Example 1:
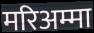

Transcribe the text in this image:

मरिअम्मा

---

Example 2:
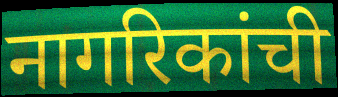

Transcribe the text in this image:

नागरिकांची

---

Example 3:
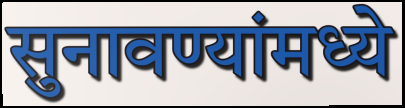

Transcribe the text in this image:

सुनावण्यांमध्ये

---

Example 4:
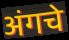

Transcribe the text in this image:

अंगचे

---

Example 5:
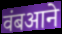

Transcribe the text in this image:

वंबआने